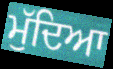
ਮੁੱਦਿਆ